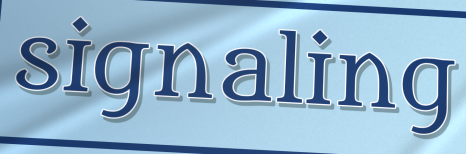
signaling